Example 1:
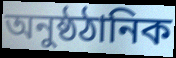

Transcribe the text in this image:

অনুষ্ঠঠানিক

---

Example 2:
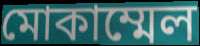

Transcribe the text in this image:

মোকাম্মেল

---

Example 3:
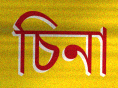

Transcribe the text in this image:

চিনা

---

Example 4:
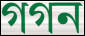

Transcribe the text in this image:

গগন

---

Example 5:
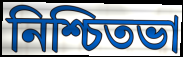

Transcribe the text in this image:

নিশ্চিতভা